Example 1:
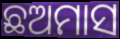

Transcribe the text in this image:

ଛଅମାସ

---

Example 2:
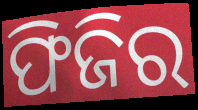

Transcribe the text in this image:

ଫିଜିର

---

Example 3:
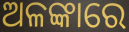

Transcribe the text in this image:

ଅଳଙ୍କାରେ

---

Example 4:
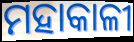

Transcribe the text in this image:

ମହାକାଳୀ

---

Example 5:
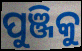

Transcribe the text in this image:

ପୁଞ୍ଜିକୁ